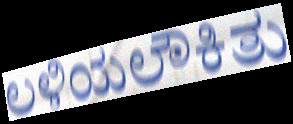
ಲಳಿಯಲೌಕಿತು